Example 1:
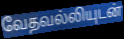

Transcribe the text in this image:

வேதவல்லியுடன்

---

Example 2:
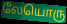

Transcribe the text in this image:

லேயொரு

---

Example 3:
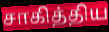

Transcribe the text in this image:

சாகித்திய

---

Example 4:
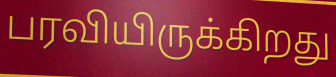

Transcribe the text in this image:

பரவியிருக்கிறது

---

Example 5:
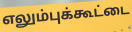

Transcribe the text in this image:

எலும்புக்கூட்டை